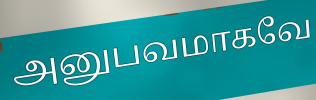
அனுபவமாகவே